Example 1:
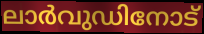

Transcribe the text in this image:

ലാർവുഡിനോട്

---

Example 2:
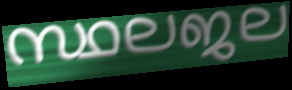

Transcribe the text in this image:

സ്ഥലജല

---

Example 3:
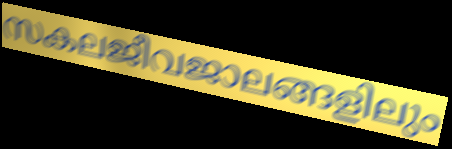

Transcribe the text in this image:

സകലജീവജാലങ്ങളിലും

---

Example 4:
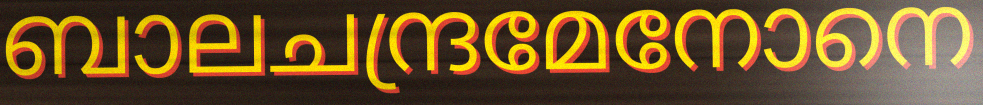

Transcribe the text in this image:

ബാലചന്ദ്രമേനോനെ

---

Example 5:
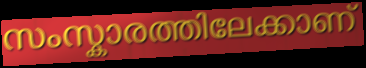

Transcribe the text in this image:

സംസ്കാരത്തിലേക്കാണ്